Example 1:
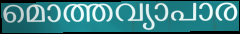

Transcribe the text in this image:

മൊത്തവ്യാപാര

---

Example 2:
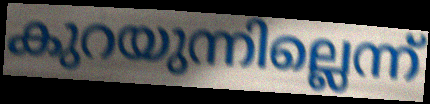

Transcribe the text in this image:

കുറയുന്നില്ലെന്ന്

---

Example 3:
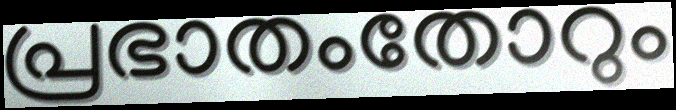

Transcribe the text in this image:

പ്രഭാതംതോറും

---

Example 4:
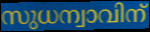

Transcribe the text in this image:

സുധന്വാവിന്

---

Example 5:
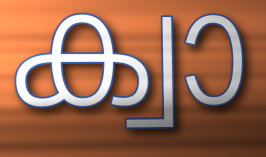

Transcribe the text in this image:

ക്വാ